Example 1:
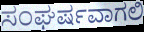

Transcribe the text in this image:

ಸಂಘರ್ಷವಾಗಲಿ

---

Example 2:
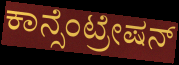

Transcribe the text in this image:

ಕಾನ್ಸೆಂಟ್ರೇಷನ್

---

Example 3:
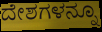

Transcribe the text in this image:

ದೇಶಗಳನ್ನೂ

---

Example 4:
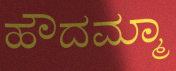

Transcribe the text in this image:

ಹೌದಮ್ಮಾ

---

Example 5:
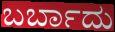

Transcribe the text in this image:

ಬರ್ಬಾದು